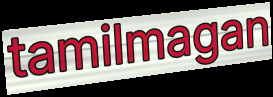
tamilmagan